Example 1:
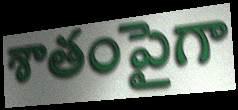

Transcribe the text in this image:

శాతంపైగా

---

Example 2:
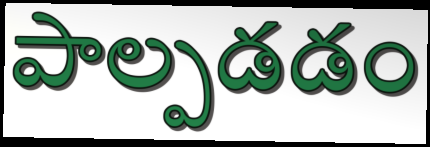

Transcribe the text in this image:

పాల్పడడం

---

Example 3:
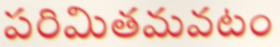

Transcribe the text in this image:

పరిమితమవటం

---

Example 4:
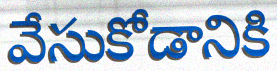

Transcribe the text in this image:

వేసుకోడానికి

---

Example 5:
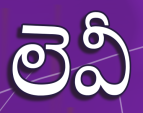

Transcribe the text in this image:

లెవీ